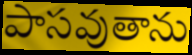
పాసవుతాను